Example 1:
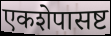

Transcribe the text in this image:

एकशेपासष्ट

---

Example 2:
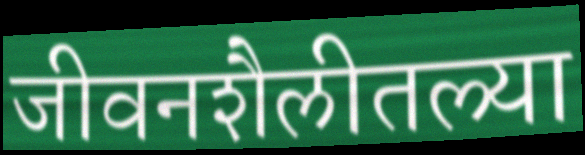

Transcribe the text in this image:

जीवनशैलीतल्या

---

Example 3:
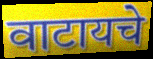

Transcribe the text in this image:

वाटायचे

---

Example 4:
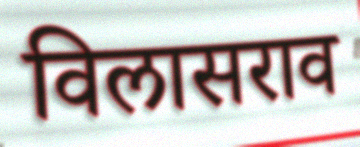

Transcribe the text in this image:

विलासराव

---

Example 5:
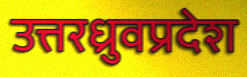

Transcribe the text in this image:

उत्तरध्रुवप्रदेश